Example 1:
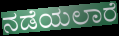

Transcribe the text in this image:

ನಡೆಯಲಾರೆ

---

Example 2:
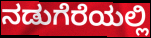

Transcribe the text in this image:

ನಡುಗೆರೆಯಲ್ಲಿ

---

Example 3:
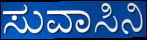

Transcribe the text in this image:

ಸುವಾಸಿನಿ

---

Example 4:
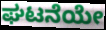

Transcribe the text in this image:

ಘಟನೆಯೇ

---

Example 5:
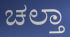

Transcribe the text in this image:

ಚಲ್ತಾ